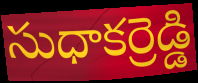
సుధాకర్రెడ్డి